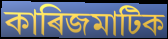
কাৰিজমাটিক